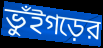
ভুঁইগড়ের